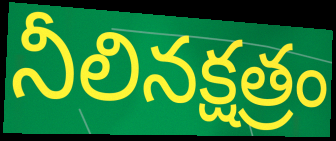
నీలినక్షత్రం